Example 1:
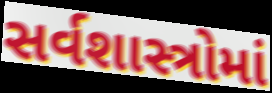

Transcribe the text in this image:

સર્વશાસ્ત્રોમાં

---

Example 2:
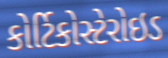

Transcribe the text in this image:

કોર્ટિકોસ્ટેરોઇડ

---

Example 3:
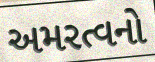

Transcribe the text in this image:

અમરત્વનો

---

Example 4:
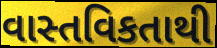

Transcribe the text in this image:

વાસ્તવિકતાથી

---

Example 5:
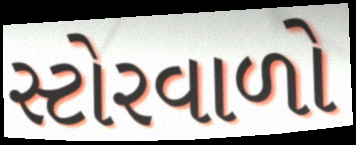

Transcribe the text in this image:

સ્ટોરવાળો